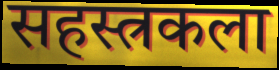
सहस्त्रकला